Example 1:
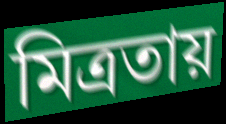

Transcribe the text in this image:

মিত্রতায়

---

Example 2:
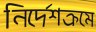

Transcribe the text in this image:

নির্দেশক্রমে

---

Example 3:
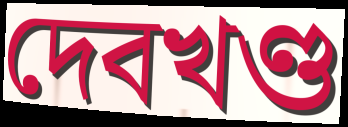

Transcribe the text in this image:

দেবখণ্ড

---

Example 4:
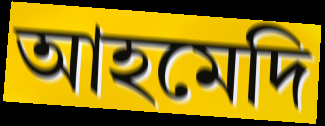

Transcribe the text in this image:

আহমেদি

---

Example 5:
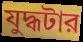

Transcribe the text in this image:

যুদ্ধটার